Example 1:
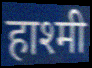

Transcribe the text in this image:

हाश्मी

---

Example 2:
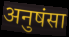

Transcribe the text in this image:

अनुषंसा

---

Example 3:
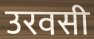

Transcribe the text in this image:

उरवसी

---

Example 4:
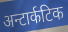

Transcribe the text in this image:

अन्टार्कटिक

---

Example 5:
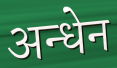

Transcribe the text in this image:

अन्धेन